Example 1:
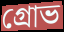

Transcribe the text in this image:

গ্রোভ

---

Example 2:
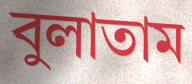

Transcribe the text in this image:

বুলাতাম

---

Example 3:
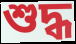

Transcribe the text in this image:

শুদ্ধ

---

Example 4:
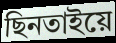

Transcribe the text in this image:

ছিনতাইয়ে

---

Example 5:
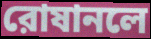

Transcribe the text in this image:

রোষানলে